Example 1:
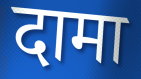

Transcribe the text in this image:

दामा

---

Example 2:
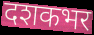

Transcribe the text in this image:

दशकभर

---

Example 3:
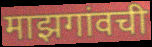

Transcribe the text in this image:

माझगांवची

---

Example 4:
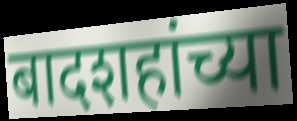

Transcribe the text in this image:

बादशहांच्या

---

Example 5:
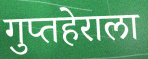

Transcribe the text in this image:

गुप्तहेराला